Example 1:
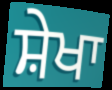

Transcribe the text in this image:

ਸ਼ੇਖਾ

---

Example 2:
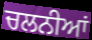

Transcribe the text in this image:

ਚਲਨੀਆਂ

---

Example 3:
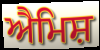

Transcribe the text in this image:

ਐਮਿਸ਼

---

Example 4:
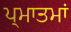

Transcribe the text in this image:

ਪ੍ਮਾਤਮਾਂ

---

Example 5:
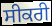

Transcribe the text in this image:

ਸੀਕਰੀ